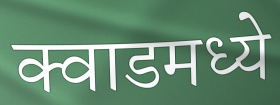
क्वाडमध्ये